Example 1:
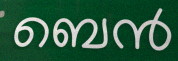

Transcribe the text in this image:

ബെൻ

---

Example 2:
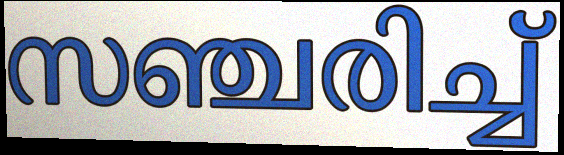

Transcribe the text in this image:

സഞ്ചരിച്ച്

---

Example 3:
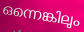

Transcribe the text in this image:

ഒന്നെങ്കിലും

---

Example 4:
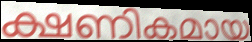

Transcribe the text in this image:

ക്ഷണികമായ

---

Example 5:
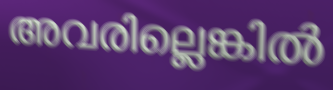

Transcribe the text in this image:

അവരില്ലെങ്കിൽ